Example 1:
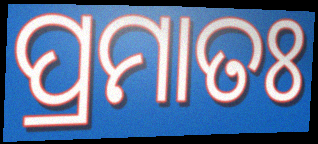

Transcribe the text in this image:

ପ୍ରମାତଃ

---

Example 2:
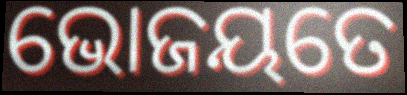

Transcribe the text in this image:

ଭୋଜୟତେ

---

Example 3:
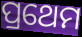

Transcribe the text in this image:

ପ୍ରଥେମ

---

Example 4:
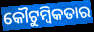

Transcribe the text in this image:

କୌଟୁମ୍ବିକତାର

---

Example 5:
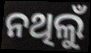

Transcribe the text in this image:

ନଥିଲୁଁ